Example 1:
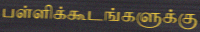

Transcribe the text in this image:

பள்ளிக்கூடங்களுக்கு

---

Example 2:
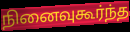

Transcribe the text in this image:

நினைவுகூர்ந்த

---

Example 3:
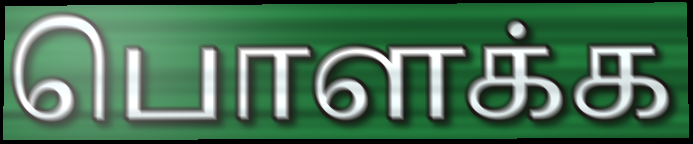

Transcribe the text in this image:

பொளக்க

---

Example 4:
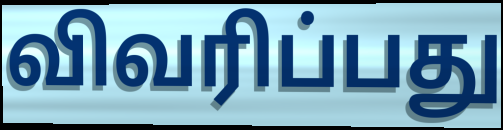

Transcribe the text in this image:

விவரிப்பது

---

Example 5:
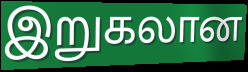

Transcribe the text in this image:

இறுகலான